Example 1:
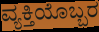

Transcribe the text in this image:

ವ್ಯಕ್ತಿಯೊಬ್ಬರ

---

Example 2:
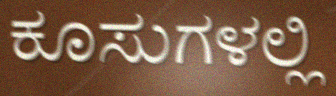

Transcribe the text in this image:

ಕೂಸುಗಳಲ್ಲಿ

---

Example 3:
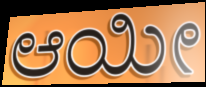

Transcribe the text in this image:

ಆಯೀ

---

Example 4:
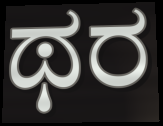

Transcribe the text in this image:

ಥರ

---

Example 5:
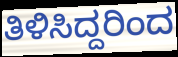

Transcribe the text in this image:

ತಿಳಿಸಿದ್ದರಿಂದ